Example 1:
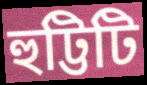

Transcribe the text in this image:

হুট্টিটি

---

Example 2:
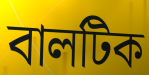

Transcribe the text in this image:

বালটিক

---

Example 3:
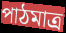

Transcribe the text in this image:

পাঠমাত্র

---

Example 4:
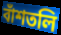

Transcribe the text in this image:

বাঁশতলি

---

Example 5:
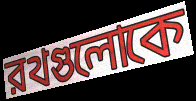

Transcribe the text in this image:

রথগুলোকে